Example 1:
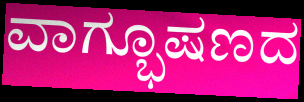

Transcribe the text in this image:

ವಾಗ್ಭೂಷಣದ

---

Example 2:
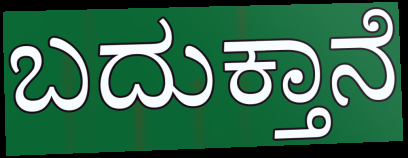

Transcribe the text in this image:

ಬದುಕ್ತಾನೆ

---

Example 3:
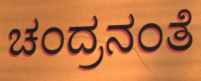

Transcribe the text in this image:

ಚಂದ್ರನಂತೆ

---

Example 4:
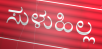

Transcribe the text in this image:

ಸುಳುಹಿಲ್ಲ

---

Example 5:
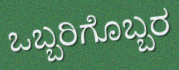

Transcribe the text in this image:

ಒಬ್ಬರಿಗೊಬ್ಬರ